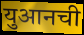
युआनची